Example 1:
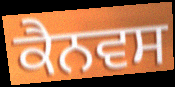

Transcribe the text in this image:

ਕੈਨਵਸ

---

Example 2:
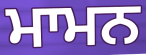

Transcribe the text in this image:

ਮਾਮਨ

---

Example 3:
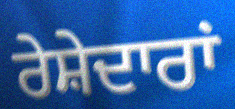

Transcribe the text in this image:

ਰੇਸ਼ੇਦਾਰਾਂ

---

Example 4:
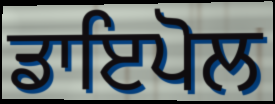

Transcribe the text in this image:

ਡਾਇਪੋਲ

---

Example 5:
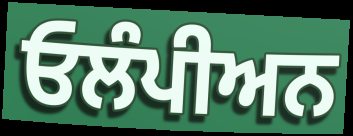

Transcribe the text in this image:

ਓਲੰਪੀਅਨ